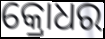
କ୍ରୋଧର